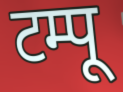
टम्पू